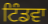
ਟਿੰਡਵਾ